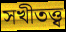
সখীতত্ত্ব